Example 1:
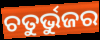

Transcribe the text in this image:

ଚତୁର୍ଭୁଜର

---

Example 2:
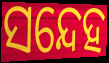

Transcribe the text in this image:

ସନ୍ଦେହ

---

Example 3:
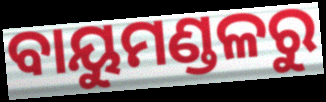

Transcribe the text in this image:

ବାୟୁମଣ୍ଡଳରୁ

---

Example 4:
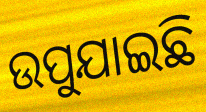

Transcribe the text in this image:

ଉପୁଯାଇଛି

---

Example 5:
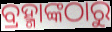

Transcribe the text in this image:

ବ୍ରହ୍ମାଙ୍କଠାରୁ